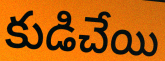
కుడిచేయి